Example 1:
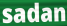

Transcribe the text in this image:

sadan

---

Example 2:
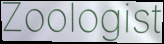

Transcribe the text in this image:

Zoologist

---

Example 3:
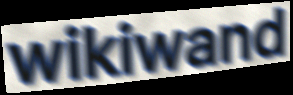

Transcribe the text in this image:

wikiwand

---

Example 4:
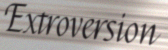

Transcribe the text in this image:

Extroversion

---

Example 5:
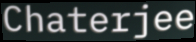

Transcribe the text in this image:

Chaterjee